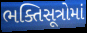
ભક્તિસૂત્રોમાં